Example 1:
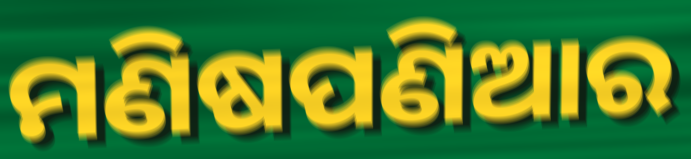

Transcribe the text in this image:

ମଣିଷପଣିଆର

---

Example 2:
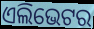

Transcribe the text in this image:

ଏଲିଭେଟର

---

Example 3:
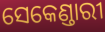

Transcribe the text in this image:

ସେକେଣ୍ଡାରୀ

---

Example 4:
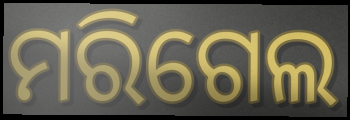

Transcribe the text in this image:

ମରିଗେଲ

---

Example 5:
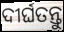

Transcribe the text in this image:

ଦୀର୍ଘତନ୍ତୁ